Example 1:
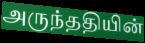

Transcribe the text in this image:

அருந்ததியின்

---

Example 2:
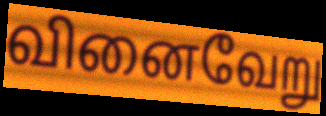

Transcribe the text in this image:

வினைவேறு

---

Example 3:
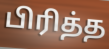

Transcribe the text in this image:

பிரித்த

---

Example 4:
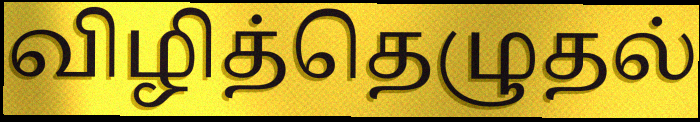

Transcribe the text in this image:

விழித்தெழுதல்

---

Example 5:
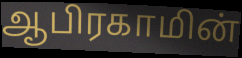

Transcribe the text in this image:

ஆபிரகாமின்